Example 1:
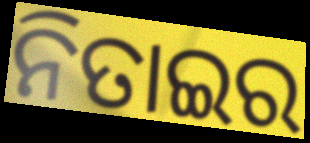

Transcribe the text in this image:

ନିତାଇର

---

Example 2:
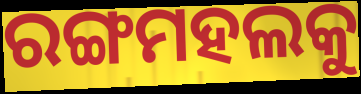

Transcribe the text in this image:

ରଙ୍ଗମହଲକୁ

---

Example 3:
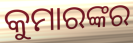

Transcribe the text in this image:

କୁମାରଙ୍କର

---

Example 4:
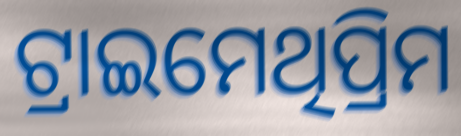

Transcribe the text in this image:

ଟ୍ରାଇମେଥିପ୍ରିମ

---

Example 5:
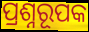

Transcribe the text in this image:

ପ୍ରଶ୍ନରୂପକ